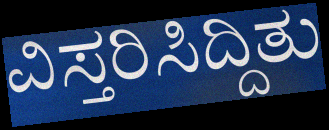
ವಿಸ್ತರಿಸಿದ್ದಿತು